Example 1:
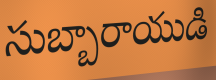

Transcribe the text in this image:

సుబ్బారాయుడి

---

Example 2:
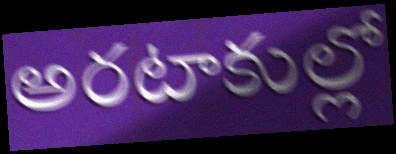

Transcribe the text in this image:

అరటాకుల్లో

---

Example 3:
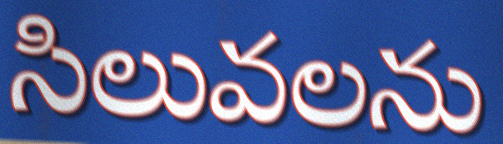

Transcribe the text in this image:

సిలువలను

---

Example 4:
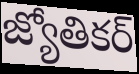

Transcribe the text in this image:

జ్యోతికర్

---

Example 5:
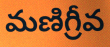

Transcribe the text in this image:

మణిగ్రీవ